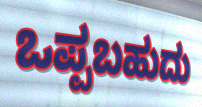
ಒಪ್ಪಬಹುದು